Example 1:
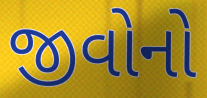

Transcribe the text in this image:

જીવોનો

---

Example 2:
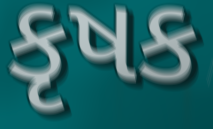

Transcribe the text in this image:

કૃષક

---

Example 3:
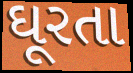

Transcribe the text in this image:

ઘૂરતા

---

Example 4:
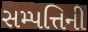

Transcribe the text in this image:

સમ્પત્તિની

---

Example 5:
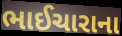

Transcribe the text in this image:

ભાઈચારાના